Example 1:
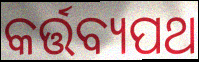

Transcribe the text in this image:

କର୍ତ୍ତବ୍ୟପଥ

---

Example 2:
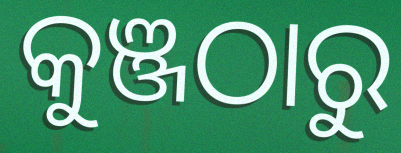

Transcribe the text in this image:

କୁଞ୍ଜଠାରୁ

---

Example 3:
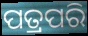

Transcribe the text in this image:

ପତ୍ରପରି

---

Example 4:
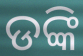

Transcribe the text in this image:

ଡଙ୍କି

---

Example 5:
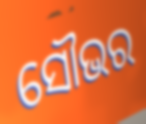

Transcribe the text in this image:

ସୌଭର